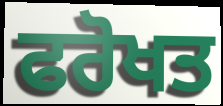
ਫਰੋਖਤ